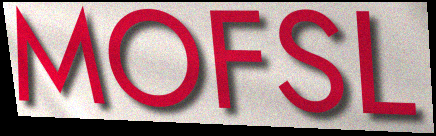
MOFSL